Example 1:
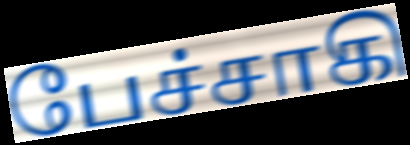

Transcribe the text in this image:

பேச்சாகி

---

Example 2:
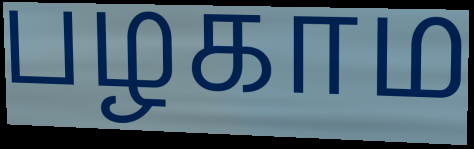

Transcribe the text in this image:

பழகாம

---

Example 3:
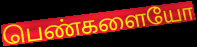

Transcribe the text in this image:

பெண்களையோ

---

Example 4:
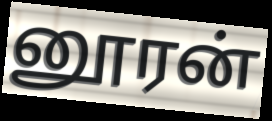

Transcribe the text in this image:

னூரன்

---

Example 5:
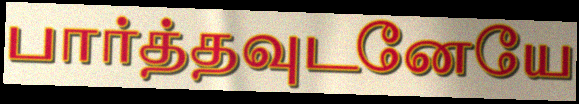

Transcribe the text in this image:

பார்த்தவுடனேயே